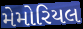
મેમોરિયલ